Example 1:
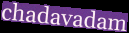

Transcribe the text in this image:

chadavadam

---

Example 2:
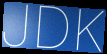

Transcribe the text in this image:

JDK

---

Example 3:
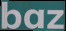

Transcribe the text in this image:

baz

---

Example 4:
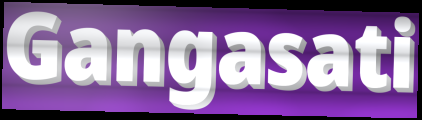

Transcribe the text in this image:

Gangasati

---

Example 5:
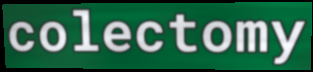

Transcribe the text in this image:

colectomy